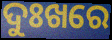
ଦୁଃଖରେ